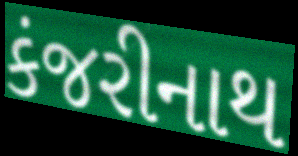
કંજરીનાથ